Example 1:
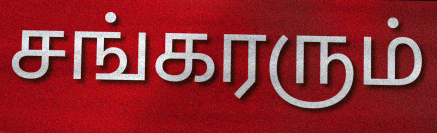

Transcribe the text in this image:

சங்கரரும்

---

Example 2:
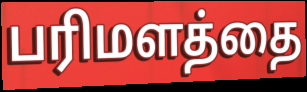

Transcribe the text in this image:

பரிமளத்தை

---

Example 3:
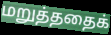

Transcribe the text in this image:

மறுத்ததைக்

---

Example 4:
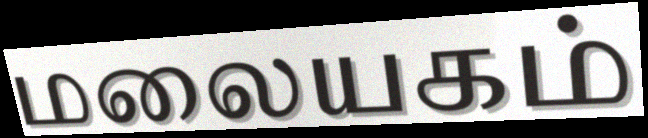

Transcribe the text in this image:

மலையகம்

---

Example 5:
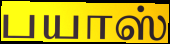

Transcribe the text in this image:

பயாஸ்